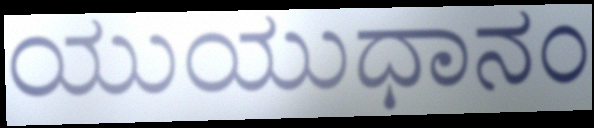
ಯುಯುಧಾನಂ